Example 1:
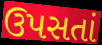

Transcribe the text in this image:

ઉપસતાં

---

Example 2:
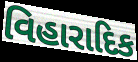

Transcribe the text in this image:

વિહારાદિક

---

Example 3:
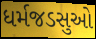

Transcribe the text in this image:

ધર્મજડસુઓ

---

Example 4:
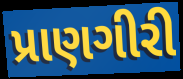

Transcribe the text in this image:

પ્રાણગીરી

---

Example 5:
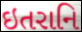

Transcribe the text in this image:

ઇતરાનિ